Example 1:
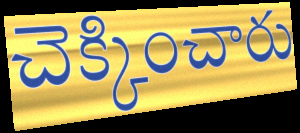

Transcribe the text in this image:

చెక్కించారు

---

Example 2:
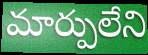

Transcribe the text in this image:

మార్పులేని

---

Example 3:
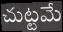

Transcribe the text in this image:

చుట్టమే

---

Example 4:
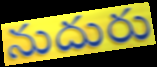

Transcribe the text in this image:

నుదురు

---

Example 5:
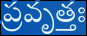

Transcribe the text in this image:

ప్రవృత్తః